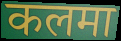
कलमा